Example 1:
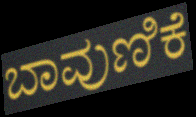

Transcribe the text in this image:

ಬಾವುಣಿಕೆ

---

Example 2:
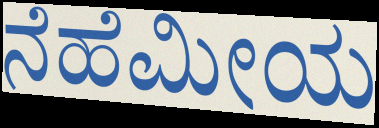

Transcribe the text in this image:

ನೆಹೆಮೀಯ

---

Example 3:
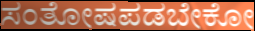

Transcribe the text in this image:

ಸಂತೋಷಪಡಬೇಕೋ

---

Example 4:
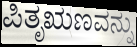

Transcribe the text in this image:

ಪಿತೃಋಣವನ್ನು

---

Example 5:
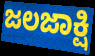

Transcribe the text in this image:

ಜಲಜಾಕ್ಷಿ